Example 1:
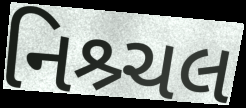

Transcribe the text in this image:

નિશ્ર્ચલ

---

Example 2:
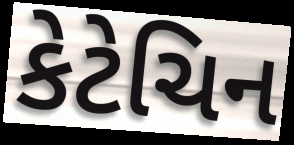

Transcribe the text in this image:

કેટેચિન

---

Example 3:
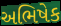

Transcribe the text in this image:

અભિષેક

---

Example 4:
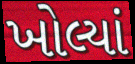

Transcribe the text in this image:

ખોલ્યાં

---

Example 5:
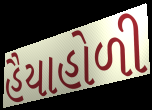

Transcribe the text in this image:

હૈયાહોળી